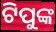
ଟିପୁଙ୍କ